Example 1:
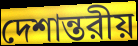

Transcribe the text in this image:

দেশান্তরীয়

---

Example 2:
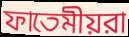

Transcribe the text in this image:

ফাতেমীয়রা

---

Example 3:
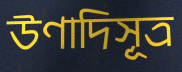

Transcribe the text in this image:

উণাদিসূত্র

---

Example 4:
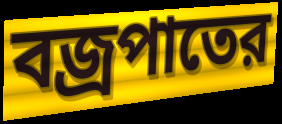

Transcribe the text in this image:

বজ্রপাতের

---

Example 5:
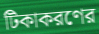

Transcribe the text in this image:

টিকাকরণের